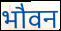
भौवन